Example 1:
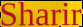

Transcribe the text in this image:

Sharir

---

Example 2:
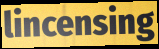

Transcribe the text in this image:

lincensing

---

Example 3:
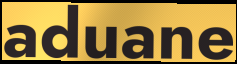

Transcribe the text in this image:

aduane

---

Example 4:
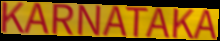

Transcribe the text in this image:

KARNATAKA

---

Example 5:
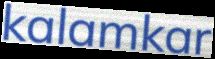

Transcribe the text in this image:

kalamkar